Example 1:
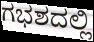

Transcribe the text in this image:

ಗಭಶದಲ್ಲಿ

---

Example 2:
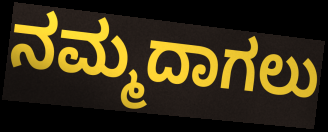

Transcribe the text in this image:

ನಮ್ಮದಾಗಲು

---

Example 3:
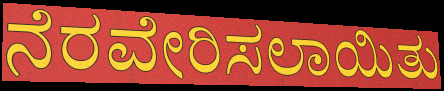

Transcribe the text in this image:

ನೆರವೇರಿಸಲಾಯಿತು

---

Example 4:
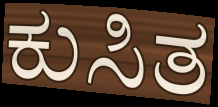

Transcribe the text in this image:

ಕುಸಿತ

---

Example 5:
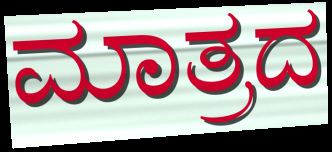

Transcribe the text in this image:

ಮಾತ್ರದ